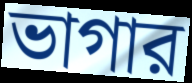
ভাগার